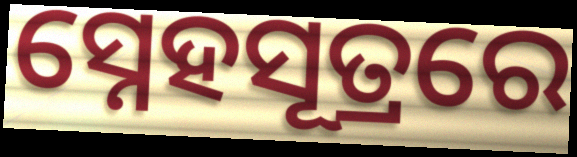
ସ୍ନେହସୂତ୍ରରେ